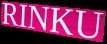
RINKU